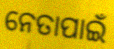
ନେତାପାଇଁ